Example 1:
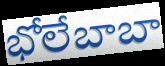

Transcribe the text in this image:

భోలేబాబా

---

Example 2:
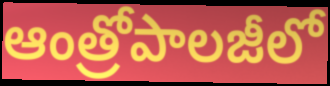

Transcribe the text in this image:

ఆంత్రోపాలజీలో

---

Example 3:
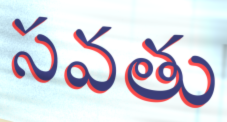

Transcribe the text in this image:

సవతు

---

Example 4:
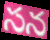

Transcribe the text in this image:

సన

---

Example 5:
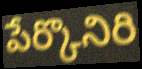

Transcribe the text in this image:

పేర్కొనిరి